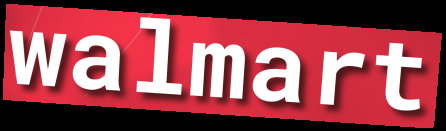
walmart